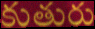
కుతురు